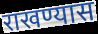
राखण्यास